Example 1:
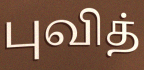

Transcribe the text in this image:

புவித்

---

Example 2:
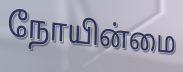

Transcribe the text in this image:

நோயின்மை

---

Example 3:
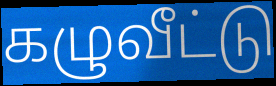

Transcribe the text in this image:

கழுவீட்டு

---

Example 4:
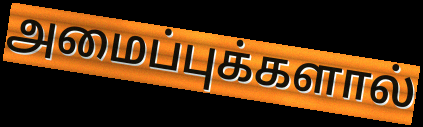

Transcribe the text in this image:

அமைப்புக்களால்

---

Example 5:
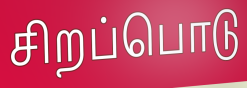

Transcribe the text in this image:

சிறப்பொடு